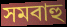
সমবাহু